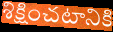
శిక్షించటానికి